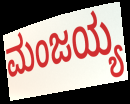
ಮಂಜಯ್ಯ